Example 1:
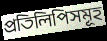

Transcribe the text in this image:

প্ৰতিলিপিসমূহ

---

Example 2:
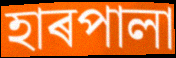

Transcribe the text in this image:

হাৰপালা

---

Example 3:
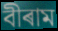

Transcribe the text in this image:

বীৰাম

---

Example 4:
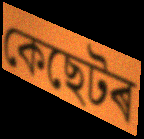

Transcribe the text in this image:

কেছেটৰ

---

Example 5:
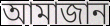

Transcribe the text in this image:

আমাজান